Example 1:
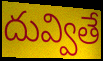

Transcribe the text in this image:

దువ్వితే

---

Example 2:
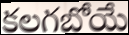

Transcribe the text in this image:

కలగబోయే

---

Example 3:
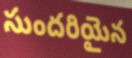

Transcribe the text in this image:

సుందరియైన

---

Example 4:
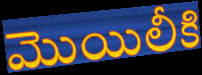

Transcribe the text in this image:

మొయిలీకి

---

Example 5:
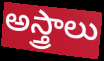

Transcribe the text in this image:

అస్త్రాలు